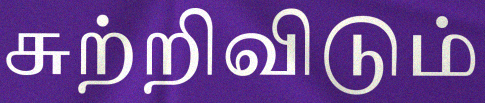
சுற்றிவிடும்